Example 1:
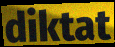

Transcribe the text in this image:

diktat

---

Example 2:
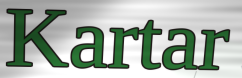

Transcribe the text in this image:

Kartar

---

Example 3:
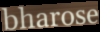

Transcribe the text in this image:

bharose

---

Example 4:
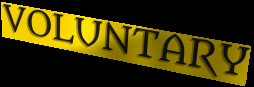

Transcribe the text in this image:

VOLUNTARY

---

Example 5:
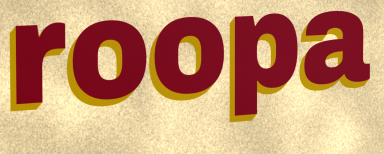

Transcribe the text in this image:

roopa